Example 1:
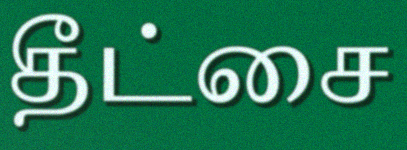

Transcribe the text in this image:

தீட்சை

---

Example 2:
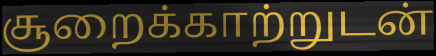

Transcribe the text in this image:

சூறைக்காற்றுடன்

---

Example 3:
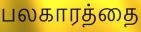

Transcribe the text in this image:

பலகாரத்தை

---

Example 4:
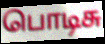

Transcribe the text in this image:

பொடிசு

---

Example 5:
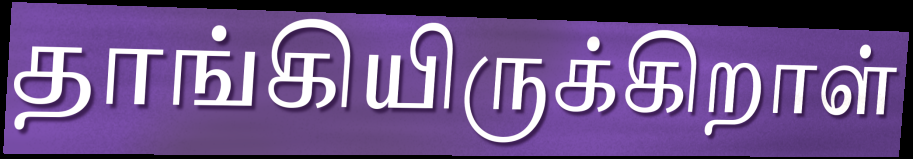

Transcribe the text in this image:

தாங்கியிருக்கிறாள்